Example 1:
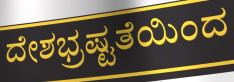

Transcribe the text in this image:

ದೇಶಭ್ರಷ್ಟತೆಯಿಂದ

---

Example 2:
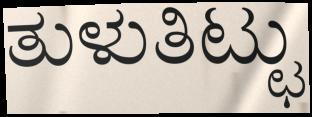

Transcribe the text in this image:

ತುಳುತಿಟ್ಟು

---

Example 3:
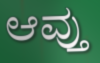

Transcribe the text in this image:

ಆವ್ತು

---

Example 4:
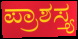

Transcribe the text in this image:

ಪ್ರಾಶಸ್ತ್ಯ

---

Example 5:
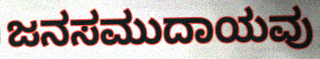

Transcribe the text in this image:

ಜನಸಮುದಾಯವು